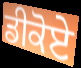
ਡੀਕੋਏ